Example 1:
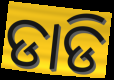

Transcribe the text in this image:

ଡାଡି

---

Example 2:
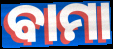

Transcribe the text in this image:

ବାମା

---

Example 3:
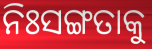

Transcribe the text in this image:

ନିଃସଙ୍ଗତାକୁ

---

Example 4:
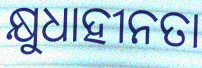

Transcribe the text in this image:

କ୍ଷୁଧାହୀନତା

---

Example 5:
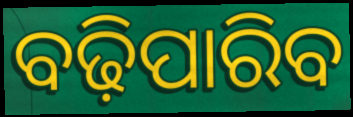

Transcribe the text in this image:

ବଢ଼ିପାରିବ